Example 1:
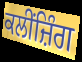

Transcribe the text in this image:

ਕਲੀਂਜ਼ਿੰਗ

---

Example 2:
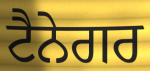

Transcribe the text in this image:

ਟੈਨੇਗਰ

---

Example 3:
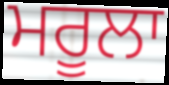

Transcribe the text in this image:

ਮਰੂਲਾ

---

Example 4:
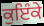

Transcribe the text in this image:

ਕੁਇੰਕੇ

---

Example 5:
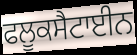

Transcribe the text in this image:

ਫਲੂਕਸੈਟਾਈਨ